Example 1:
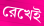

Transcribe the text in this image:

রেখেই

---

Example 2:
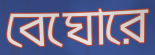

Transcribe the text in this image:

বেঘোরে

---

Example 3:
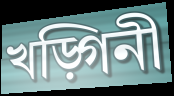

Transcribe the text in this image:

খড়্গিনী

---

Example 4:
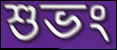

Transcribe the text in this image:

শুভং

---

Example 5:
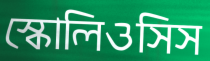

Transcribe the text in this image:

স্কোলিওসিস